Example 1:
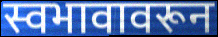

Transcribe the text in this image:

स्वभावावरून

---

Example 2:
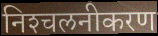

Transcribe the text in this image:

निश्चलनीकरण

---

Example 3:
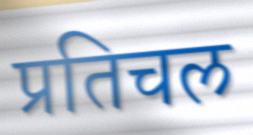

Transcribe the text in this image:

प्रतिचल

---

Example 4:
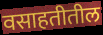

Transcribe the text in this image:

वसाहतीतील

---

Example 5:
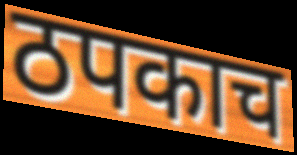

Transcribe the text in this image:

ठपकाच